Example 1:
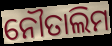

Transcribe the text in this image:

ନୌତାଲିମ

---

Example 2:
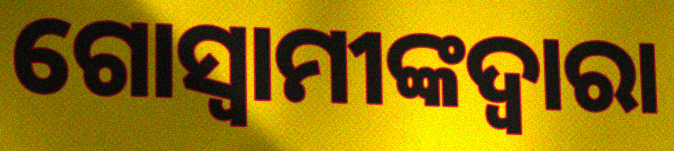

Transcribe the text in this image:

ଗୋସ୍ୱାମୀଙ୍କଦ୍ୱାରା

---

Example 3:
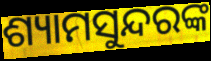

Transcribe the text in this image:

ଶ୍ୟାମସୁନ୍ଦରଙ୍କ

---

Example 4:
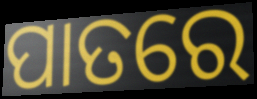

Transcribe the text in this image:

ପାତରେ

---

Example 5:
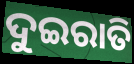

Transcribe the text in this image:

ଦୁଇରାତି